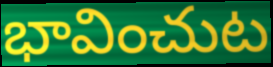
భావించుట